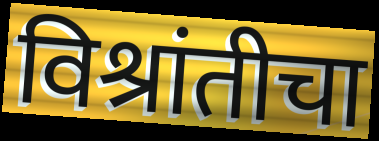
विश्रांतीचा